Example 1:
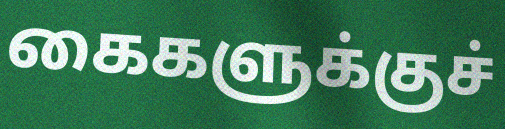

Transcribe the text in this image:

கைகளுக்குச்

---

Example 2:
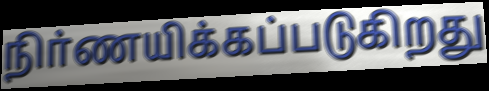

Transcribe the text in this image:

நிர்ணயிக்கப்படுகிறது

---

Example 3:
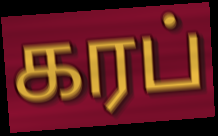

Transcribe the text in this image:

கரப்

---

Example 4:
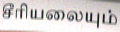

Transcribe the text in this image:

சீரியலையும்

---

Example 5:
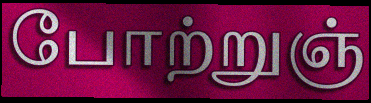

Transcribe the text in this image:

போற்றுஞ்